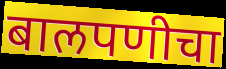
बालपणीचा